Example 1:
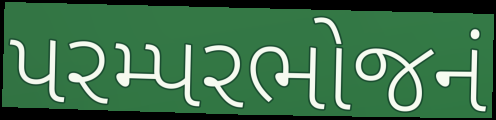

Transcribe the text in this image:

પરમ્પરભોજનં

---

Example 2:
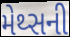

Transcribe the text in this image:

મેથ્સની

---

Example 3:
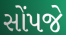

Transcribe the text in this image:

સોંપજે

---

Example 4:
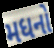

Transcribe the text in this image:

મધનો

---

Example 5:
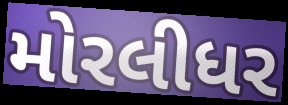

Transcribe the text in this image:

મોરલીધર